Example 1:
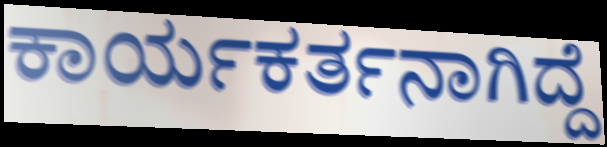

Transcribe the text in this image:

ಕಾರ್ಯಕರ್ತನಾಗಿದ್ದೆ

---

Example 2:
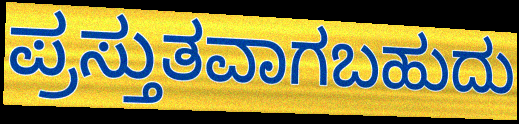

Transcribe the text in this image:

ಪ್ರಸ್ತುತವಾಗಬಹುದು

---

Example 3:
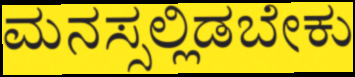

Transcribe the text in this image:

ಮನಸ್ಸಲ್ಲಿಡಬೇಕು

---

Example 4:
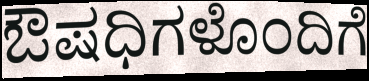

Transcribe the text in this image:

ಔಷಧಿಗಳೊಂದಿಗೆ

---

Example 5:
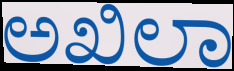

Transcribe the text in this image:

ಅಖಿಲಾ